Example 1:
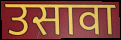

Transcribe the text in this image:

उसावा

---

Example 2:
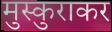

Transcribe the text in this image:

मुस्कुराकर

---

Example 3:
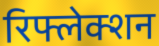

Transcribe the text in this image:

रिफ्लेक्शन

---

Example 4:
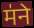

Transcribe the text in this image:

म॑ने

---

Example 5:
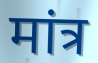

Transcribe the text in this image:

मांत्र